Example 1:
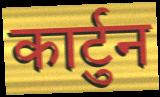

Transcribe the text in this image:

कार्टुन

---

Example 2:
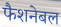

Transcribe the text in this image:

फैशनेबल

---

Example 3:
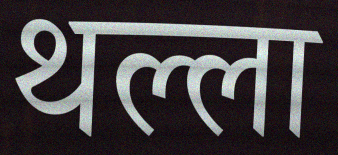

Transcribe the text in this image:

थल्ला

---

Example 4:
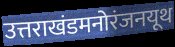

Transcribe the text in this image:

उत्तराखंडमनोरंजनयूथ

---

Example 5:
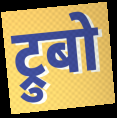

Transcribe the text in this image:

ट्रुबो